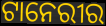
ଟାନେରୀର